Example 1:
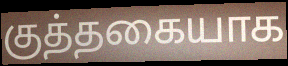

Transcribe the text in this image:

குத்தகையாக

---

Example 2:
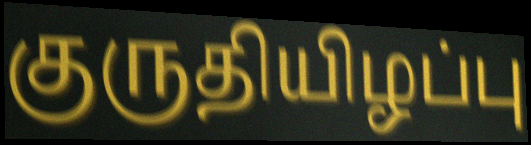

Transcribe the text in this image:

குருதியிழப்பு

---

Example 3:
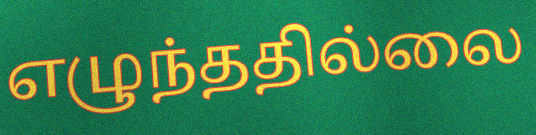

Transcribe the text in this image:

எழுந்ததில்லை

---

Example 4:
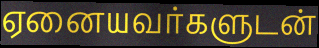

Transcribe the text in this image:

ஏனையவர்களுடன்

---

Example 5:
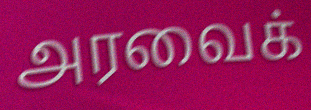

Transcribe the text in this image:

அரவைக்